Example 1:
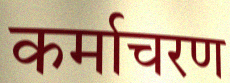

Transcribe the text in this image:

कर्माचरण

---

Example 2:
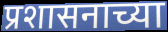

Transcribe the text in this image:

प्रशासनाच्या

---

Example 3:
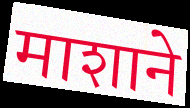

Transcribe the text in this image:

माशाने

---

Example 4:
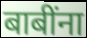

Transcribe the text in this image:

बाबींना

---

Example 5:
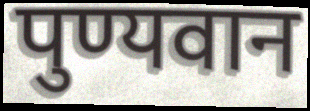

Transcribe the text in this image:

पुण्यवान